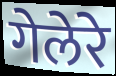
गेलेरे